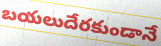
బయలుదేరకుండానే